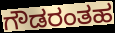
ಗೌಡರಂತಹ